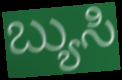
ಬ್ಯುಸಿ